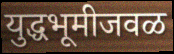
युद्धभूमीजवळ